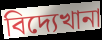
বিদ্যেখানা